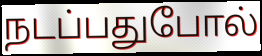
நடப்பதுபோல்